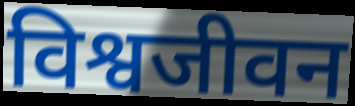
विश्वजीवन